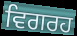
ਵਿਗਰਹ